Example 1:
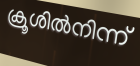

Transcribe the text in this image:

ക്രൂശിൽനിന്ന്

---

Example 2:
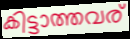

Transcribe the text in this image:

കിട്ടാത്തവര്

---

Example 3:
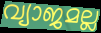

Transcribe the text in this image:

വ്യാജമല്ല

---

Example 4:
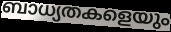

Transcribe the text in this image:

ബാധ്യതകളെയും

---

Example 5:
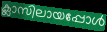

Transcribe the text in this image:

ക്ലാസിലായപ്പോൾ